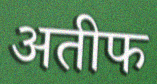
अतीफ